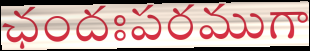
ఛందఃపరముగా